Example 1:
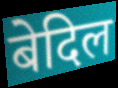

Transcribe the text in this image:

बेदिल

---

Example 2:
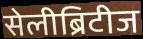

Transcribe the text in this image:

सेलीब्रिटीज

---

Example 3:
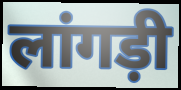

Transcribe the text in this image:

लांगड़ी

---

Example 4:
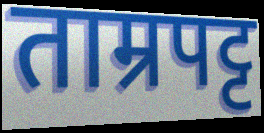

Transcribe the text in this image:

ताम्रपट्ट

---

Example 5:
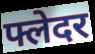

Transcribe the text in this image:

फ्लेदर